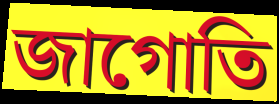
জাগোতি